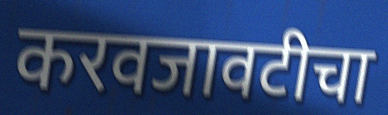
करवजावटीचा